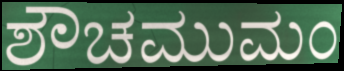
ಶೌಚಮುಮಂ